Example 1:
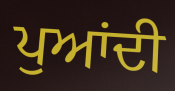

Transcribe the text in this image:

ਪੁਆਂਦੀ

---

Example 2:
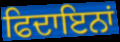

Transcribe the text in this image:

ਫਿਦਾਇਨਾਂ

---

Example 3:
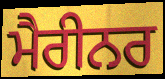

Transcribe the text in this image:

ਮੈਰੀਨਰ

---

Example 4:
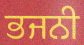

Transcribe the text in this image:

ਭਜਨੀ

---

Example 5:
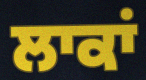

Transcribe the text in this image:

ਲਾਕਾਂ